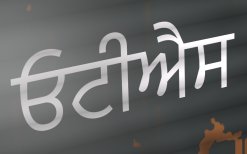
ਓਟੀਐਸ